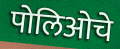
पोलिओचे